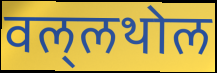
वल्लथोल